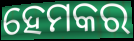
ହେମକର